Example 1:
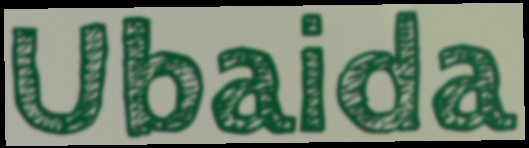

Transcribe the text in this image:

Ubaida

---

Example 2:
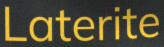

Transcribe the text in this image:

Laterite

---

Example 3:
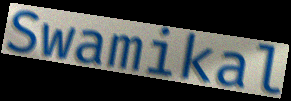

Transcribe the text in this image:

Swamikal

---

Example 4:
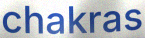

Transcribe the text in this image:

chakras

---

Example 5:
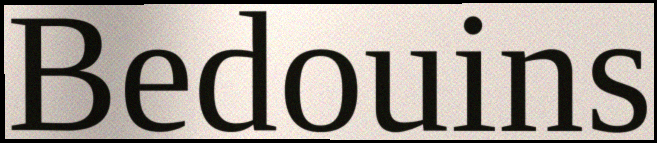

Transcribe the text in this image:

Bedouins